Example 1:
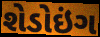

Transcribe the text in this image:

શેડોઇંગ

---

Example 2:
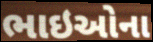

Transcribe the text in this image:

ભાઇઓના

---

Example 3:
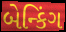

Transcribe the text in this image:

બેન્કિંગ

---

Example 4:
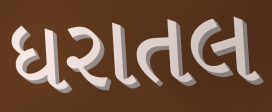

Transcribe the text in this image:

ધરાતલ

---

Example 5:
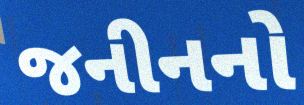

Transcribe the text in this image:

જનીનનો